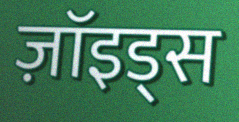
ज़ॉइड्स